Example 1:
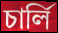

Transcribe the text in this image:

চার্লি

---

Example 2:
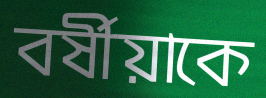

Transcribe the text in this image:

বর্ষীয়াকে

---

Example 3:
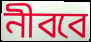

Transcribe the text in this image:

নীববে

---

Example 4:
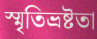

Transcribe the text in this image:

স্মৃতিভ্রষ্টতা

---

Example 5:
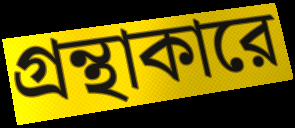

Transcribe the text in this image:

গ্রন্থাকারে